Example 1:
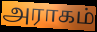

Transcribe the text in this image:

அராகம்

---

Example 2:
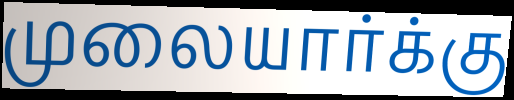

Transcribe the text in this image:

முலையார்க்கு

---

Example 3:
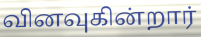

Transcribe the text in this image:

வினவுகின்றார்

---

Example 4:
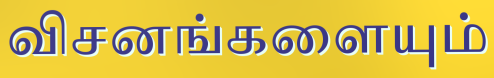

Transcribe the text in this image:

விசனங்களையும்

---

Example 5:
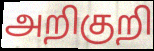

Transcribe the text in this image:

அறிகுறி